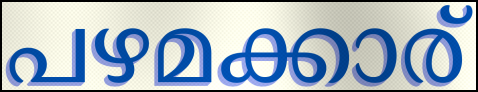
പഴമക്കാര്